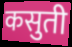
कसुती